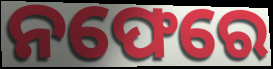
ନଫେରେ